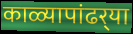
काळ्यापांढर्‍या